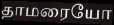
தாமரையோ